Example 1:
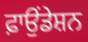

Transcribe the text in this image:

ਫ਼ਾਉਂਡੇਸ਼ਨ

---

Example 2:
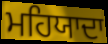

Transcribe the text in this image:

ਮਹਿਯਾਦਾ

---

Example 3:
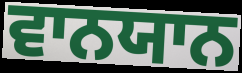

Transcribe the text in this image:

ਵਾਨਯਾਨ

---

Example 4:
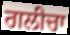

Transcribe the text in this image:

ਗਲੀਚਾ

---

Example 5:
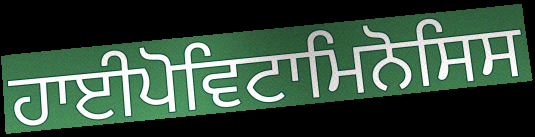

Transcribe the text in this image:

ਹਾਈਪੋਵਿਟਾਮਿਨੋਸਿਸ